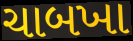
ચાબખા